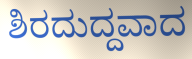
ಶಿರದುದ್ದವಾದ